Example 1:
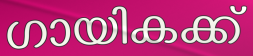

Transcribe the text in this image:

ഗായികക്ക്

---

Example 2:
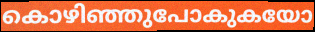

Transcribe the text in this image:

കൊഴിഞ്ഞുപോകുകയോ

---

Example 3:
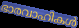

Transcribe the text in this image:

ഭാരവാഹികൾ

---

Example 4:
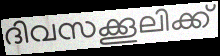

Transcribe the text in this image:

ദിവസക്കൂലിക്ക്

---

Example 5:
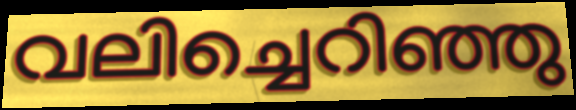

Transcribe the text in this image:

വലിച്ചെറിഞ്ഞു